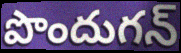
పొందుగన్